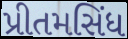
પ્રીતમસિંધ